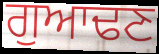
ਗੁਆਢਣ